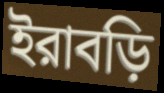
ইরাবড়ি